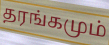
தரங்கமும்